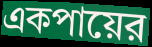
একপায়ের